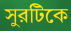
সুরটিকে